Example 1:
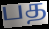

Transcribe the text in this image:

பத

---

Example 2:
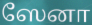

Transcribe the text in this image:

ஸேனா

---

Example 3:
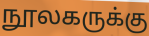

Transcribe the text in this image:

நூலகருக்கு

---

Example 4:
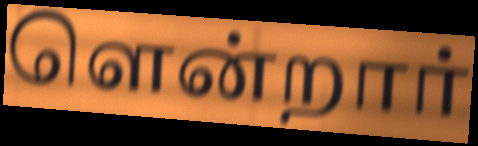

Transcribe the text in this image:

ளென்றார்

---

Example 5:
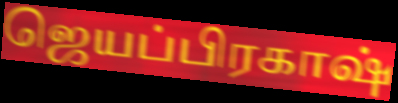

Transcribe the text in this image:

ஜெயப்பிரகாஷ்